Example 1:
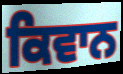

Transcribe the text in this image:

ਕਿਵਾਨ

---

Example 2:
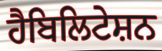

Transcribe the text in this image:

ਹੈਬਿਲਿਟੇਸ਼ਨ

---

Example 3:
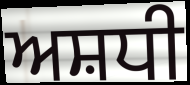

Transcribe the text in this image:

ਅਸ਼ਧੀ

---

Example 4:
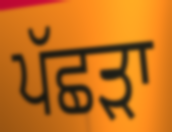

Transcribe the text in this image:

ਪੱਛੜਾ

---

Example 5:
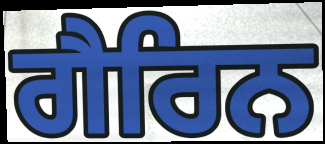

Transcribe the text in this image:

ਗੈਰਿਨ